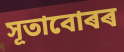
সূতাবোৰৰ